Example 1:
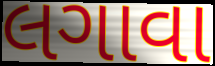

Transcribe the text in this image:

લગાવા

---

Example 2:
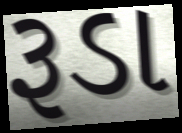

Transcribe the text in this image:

રૂડા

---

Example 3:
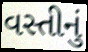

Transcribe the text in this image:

વસ્તીનું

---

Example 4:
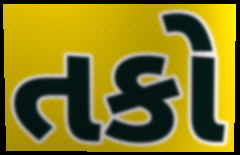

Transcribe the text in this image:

તકો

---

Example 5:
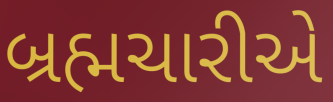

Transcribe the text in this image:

બ્રહ્મચારીએ